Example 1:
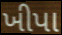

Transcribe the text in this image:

ખીપા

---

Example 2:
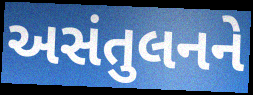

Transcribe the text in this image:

અસંતુલનને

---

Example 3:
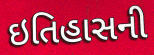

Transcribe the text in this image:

ઇતિહાસની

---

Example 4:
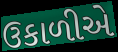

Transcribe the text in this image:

ઉકાળીએ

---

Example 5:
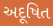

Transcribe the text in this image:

અદૂષિત